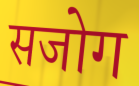
सजोग